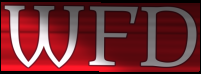
WFD